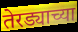
तेरड्याच्या